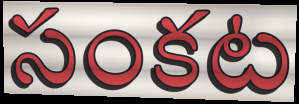
సంకట